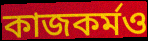
কাজকর্মও